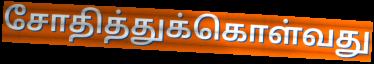
சோதித்துக்கொள்வது